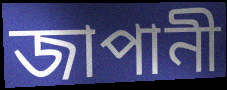
জাপানী